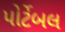
પોર્ટેબલ